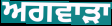
ਅਗਵਾੜਾ